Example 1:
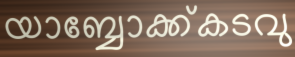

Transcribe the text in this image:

യാബ്ബോക്ക്കടവു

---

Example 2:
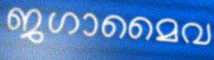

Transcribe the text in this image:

ജഗാമൈവ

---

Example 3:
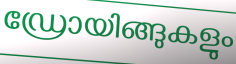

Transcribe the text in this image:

ഡ്രോയിങ്ങുകളും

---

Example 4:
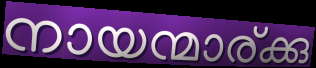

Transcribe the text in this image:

നായന്മാര്ക്കു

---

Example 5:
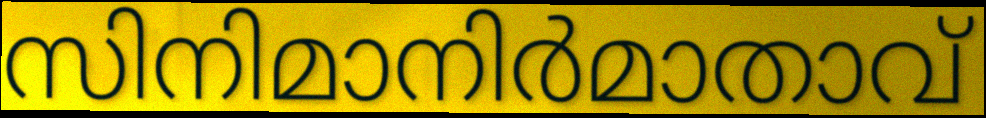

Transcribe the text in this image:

സിനിമാനിർമാതാവ്